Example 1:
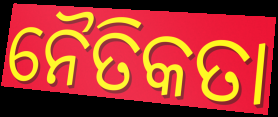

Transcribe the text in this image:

ନୈତିକତା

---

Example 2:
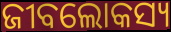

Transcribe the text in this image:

ଜୀବଲୋକସ୍ୟ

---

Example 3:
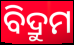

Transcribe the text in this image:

ବିଦ୍ରୁମ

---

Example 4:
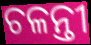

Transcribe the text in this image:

ଚଳନ୍ତୀ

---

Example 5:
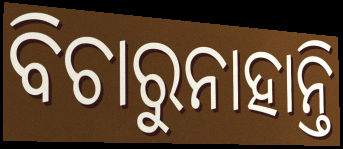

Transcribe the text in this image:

ବିଚାରୁନାହାନ୍ତି